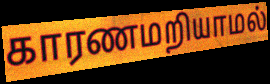
காரணமறியாமல்